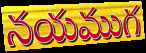
నయముగ